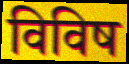
विविष